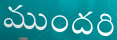
ముందరి